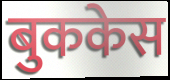
बुककेस